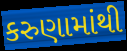
કરુણામાંથી